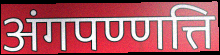
अंगपण्णत्ति